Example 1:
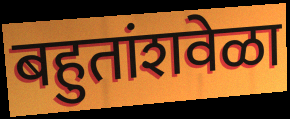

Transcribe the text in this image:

बहुतांशवेळा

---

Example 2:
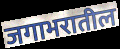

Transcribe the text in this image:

जगाभरातील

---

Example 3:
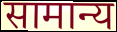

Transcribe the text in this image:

सामान्य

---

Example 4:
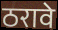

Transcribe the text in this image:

ठरावे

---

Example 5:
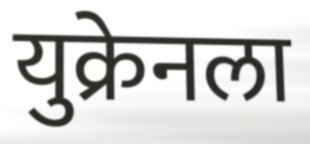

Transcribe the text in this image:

युक्रेनला